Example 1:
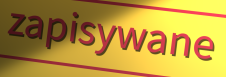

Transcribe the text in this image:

zapisywane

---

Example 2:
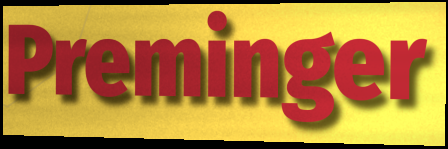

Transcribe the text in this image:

Preminger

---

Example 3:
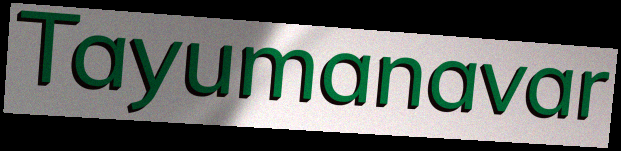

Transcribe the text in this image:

Tayumanavar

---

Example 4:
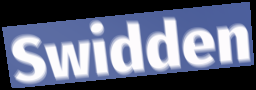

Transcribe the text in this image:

Swidden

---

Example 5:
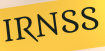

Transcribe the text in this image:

IRNSS